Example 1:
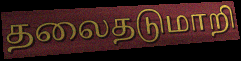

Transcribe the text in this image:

தலைதடுமாறி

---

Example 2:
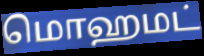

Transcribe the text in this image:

மொஹமட்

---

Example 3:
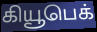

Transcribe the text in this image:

கியூபெக்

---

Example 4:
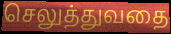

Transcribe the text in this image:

செலுத்துவதை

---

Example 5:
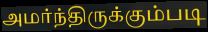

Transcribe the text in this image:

அமர்ந்திருக்கும்படி